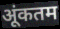
अूंकतम